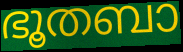
ഭൂതബാ